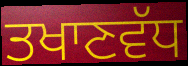
ਤਖਾਣਵੱਧ